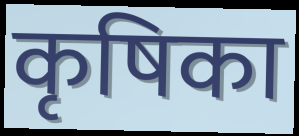
कृषिका